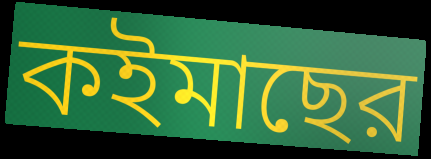
কইমাছের